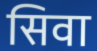
सिवा